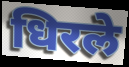
धिरले